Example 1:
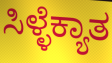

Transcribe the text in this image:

ಸಿಳ್ಳೆಕ್ಯಾತ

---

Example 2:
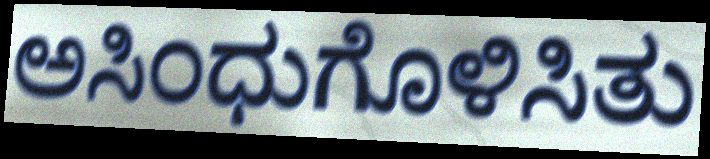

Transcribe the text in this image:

ಅಸಿಂಧುಗೊಳಿಸಿತು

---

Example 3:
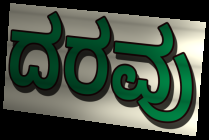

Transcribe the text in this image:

ದರವು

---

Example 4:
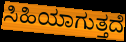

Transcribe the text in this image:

ಸಿಹಿಯಾಗುತ್ತದೆ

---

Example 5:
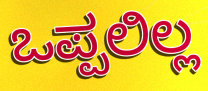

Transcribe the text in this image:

ಒಪ್ಪಲಿಲ್ಲ